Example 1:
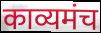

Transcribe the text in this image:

काव्यमंच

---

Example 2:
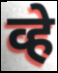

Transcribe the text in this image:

व्हे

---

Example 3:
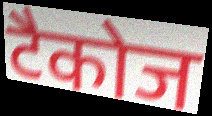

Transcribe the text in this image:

टैकोज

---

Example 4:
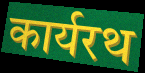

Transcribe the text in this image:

कार्यरथ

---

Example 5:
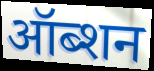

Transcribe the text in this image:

ऑब्शन